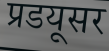
प्रडयूसर